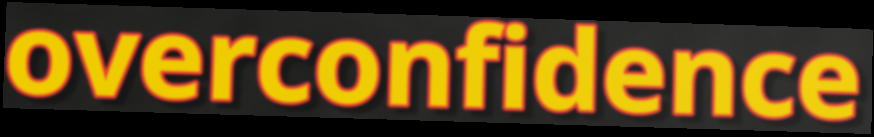
overconfidence